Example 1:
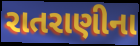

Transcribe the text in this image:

રાતરાણીના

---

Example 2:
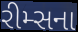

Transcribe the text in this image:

રીમ્સના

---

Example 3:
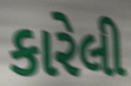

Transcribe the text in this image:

કારેલી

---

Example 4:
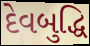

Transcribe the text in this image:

દેવબુદ્ધિ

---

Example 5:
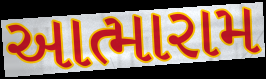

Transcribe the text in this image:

આત્મારામ